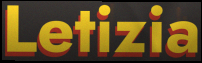
Letizia